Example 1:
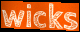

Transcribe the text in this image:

wicks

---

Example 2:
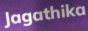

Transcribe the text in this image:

Jagathika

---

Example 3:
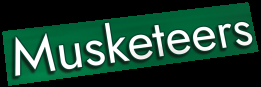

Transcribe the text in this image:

Musketeers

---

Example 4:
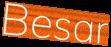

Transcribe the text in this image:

Besar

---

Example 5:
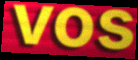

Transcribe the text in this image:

vos